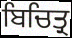
ਬਿਚਿਤ੍ਰ